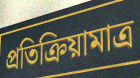
প্রতিক্রিয়ামাত্র